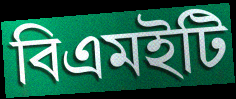
বিএমইটি